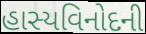
હાસ્યવિનોદની